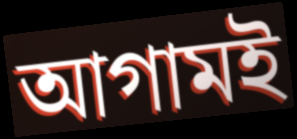
আগামই